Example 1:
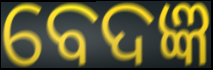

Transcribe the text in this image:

ବେଦଜ୍ଞ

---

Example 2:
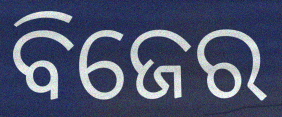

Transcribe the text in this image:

ବିଜେର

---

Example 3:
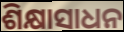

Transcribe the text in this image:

ଶିକ୍ଷାସାଧନ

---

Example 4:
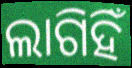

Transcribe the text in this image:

ଲାଗିହିଁ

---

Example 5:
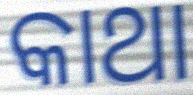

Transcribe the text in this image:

କାଥା